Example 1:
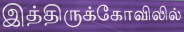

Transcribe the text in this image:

இத்திருக்கோவிலில்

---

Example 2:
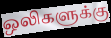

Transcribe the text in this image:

ஒலிகளுக்கு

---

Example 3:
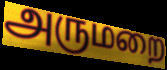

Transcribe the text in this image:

அருமறை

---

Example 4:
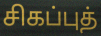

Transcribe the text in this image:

சிகப்புத்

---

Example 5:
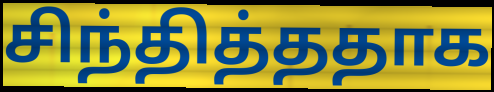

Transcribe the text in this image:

சிந்தித்ததாக